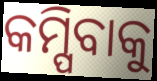
କମ୍ପିବାକୁ